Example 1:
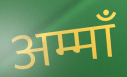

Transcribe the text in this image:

अम्माँ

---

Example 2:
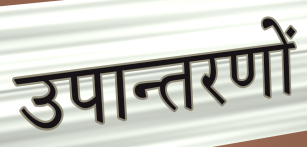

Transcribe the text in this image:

उपान्तरणों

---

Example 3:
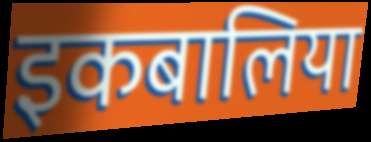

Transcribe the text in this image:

इकबालिया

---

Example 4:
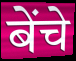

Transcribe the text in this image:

बेंचे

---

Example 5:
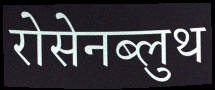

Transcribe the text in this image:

रोसेनब्लुथ